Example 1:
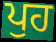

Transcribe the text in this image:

ਪੁਹ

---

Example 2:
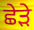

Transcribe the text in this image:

ਛੇੜੇ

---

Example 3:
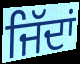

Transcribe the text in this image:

ਜਿੱਦਾਂ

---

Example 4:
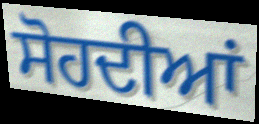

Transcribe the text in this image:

ਸੋਹਦੀਆਂ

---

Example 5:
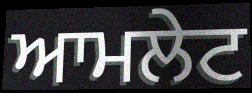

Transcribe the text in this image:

ਆਮਲੇਟ